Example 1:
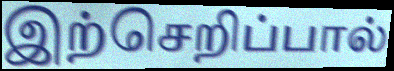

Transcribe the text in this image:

இற்செறிப்பால்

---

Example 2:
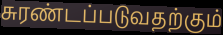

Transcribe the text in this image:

சுரண்டப்படுவதற்கும்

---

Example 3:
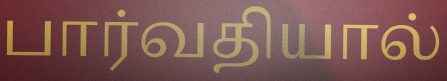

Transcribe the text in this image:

பார்வதியால்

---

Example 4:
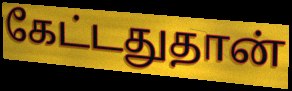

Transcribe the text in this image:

கேட்டதுதான்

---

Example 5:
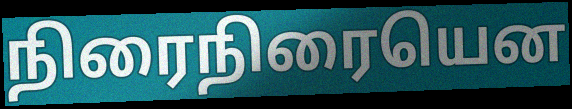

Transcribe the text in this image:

நிரைநிரையென